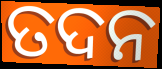
ତଦନ